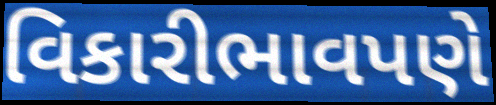
વિકારીભાવપણે